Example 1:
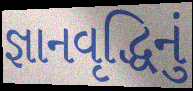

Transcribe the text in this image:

જ્ઞાનવૃદ્ધિનું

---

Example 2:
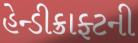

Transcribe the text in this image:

હેન્ડીક્રાફ્ટની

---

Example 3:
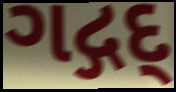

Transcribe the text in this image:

ગદ્ગદ્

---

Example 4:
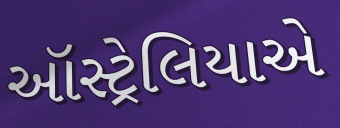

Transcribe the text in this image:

ઑસ્ટ્રેલિયાએ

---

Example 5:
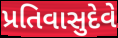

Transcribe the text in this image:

પ્રતિવાસુદેવે